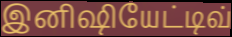
இனிஷியேட்டிவ்